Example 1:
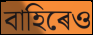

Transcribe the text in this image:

বাহিৰেও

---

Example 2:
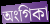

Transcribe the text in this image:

অংগিকা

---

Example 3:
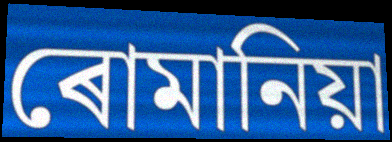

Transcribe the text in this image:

ৰোমানিয়া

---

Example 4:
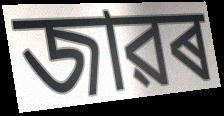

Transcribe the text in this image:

জাৱৰ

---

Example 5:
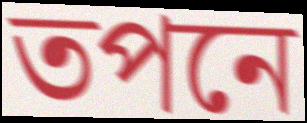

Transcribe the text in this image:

তপনে